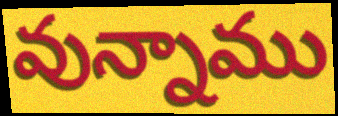
వున్నాము